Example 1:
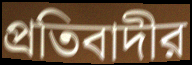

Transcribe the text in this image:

প্রতিবাদীর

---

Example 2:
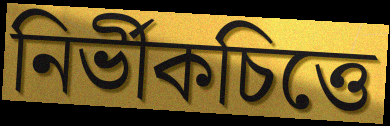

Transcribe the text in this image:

নির্ভীকচিত্তে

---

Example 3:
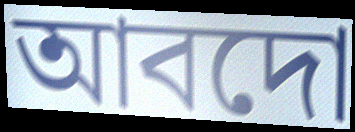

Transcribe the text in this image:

আবদো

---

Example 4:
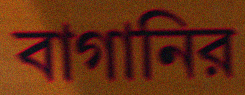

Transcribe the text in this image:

বাগানির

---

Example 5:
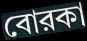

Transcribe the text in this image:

বোরকা